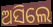
ଅସିଲେ